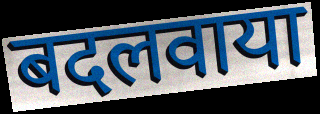
बदलवाया